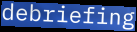
debriefing